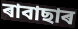
ৰাবাছাৰ